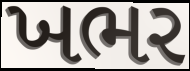
ખભર